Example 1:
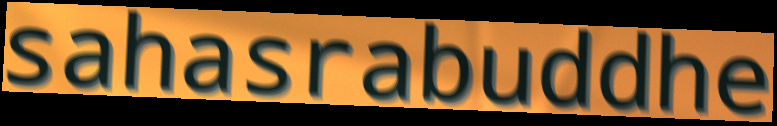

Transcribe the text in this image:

sahasrabuddhe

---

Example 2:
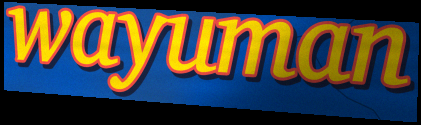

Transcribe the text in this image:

wayuman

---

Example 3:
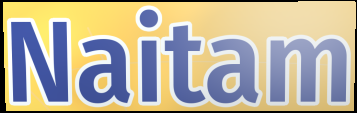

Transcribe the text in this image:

Naitam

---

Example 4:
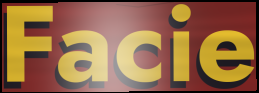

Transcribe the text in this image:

Facie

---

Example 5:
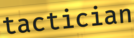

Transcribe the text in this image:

tactician